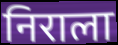
निराला